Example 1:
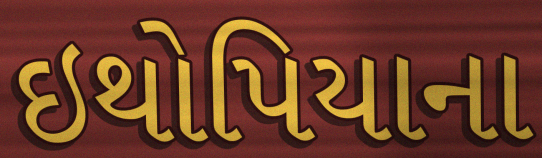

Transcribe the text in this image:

ઇથોપિયાના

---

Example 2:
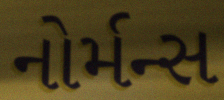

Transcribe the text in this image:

નોર્મન્સ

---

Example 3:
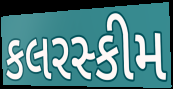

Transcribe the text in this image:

કલરસ્કીમ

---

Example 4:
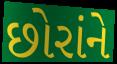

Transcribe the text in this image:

છોરાંને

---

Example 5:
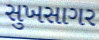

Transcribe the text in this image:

સુખસાગર